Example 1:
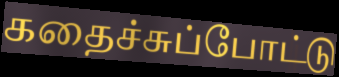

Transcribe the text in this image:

கதைச்சுப்போட்டு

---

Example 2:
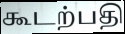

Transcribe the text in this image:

கூடற்பதி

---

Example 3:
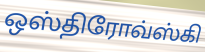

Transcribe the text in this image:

ஒஸ்திரோவ்ஸ்கி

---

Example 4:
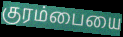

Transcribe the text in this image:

குரம்பையை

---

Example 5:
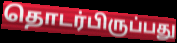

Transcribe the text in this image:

தொடர்பிருப்பது